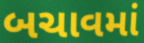
બચાવમાં